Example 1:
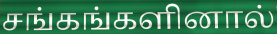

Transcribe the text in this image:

சங்கங்களினால்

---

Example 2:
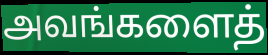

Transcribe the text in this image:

அவங்களைத்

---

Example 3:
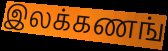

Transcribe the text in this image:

இலக்கணங்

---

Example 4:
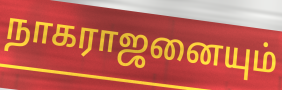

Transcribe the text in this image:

நாகராஜனையும்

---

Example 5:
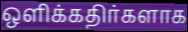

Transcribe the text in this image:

ஒளிக்கதிர்களாக